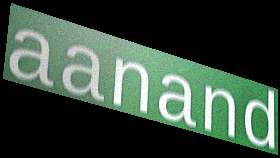
aanand